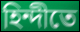
হিন্দীতে